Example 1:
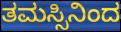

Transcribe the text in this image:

ತಮಸ್ಸಿನಿಂದ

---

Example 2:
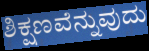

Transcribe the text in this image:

ಶಿಕ್ಷಣವೆನ್ನುವುದು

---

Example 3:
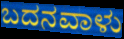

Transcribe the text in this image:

ಬದನವಾಳು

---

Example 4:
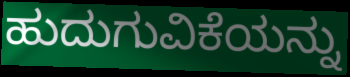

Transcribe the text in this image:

ಹುದುಗುವಿಕೆಯನ್ನು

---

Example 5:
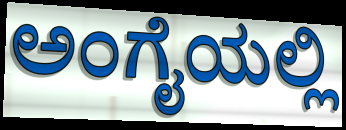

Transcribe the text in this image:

ಅಂಗೈಯಲ್ಲಿ